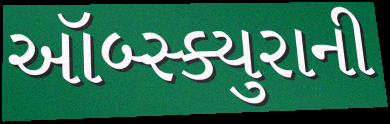
ઑબ્સ્ક્યુરાની